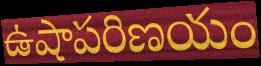
ఉషాపరిణయం